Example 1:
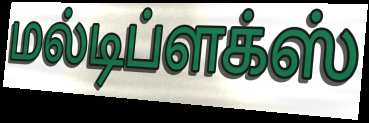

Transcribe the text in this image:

மல்டிப்ளக்ஸ்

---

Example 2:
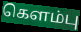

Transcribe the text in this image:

கௌம்பு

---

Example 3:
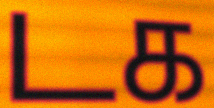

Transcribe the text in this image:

டக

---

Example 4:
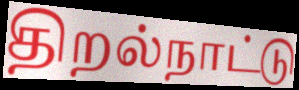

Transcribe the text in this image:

திறல்நாட்டு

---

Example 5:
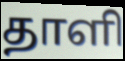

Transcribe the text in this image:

தாளி